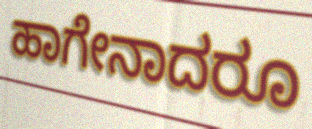
ಹಾಗೇನಾದರೂ